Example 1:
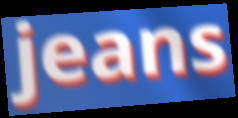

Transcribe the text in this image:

jeans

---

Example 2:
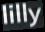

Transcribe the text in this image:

lilly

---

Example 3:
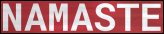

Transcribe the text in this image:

NAMASTE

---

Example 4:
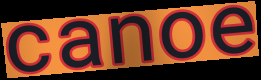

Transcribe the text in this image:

canoe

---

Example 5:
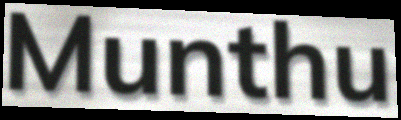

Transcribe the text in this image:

Munthu